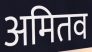
अमितव